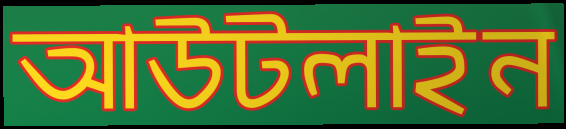
আউটলাইন